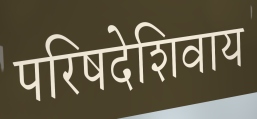
परिषदेशिवाय